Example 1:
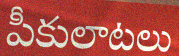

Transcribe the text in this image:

పీకులాటలు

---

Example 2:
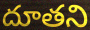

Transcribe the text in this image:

దూతని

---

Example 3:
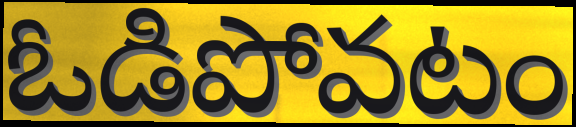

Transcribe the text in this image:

ఓడిపోవటం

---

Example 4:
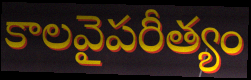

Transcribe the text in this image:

కాలవైపరీత్యం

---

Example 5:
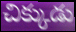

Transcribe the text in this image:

చిక్కుడు